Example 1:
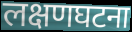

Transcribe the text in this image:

लक्षणघटना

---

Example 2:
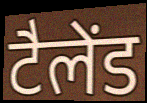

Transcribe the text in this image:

टैलेंड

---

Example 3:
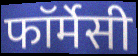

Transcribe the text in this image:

फॉर्मेसी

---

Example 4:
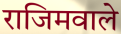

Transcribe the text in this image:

राजिमवाले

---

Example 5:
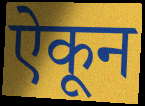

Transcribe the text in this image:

ऐकून